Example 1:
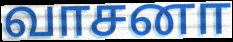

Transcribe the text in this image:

வாசனா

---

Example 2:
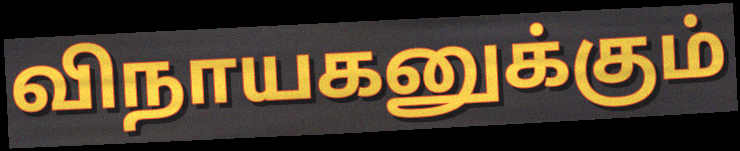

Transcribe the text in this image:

விநாயகனுக்கும்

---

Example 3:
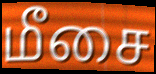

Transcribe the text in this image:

மீசை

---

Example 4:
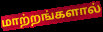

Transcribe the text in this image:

மாற்றங்களால்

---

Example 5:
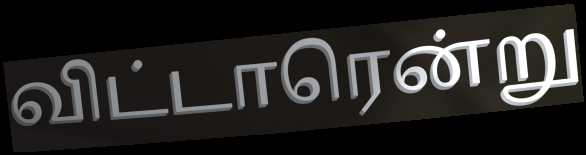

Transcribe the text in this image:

விட்டாரென்று